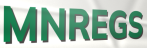
MNREGS